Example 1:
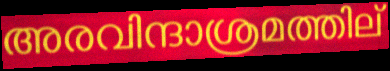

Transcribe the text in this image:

അരവിന്ദാശ്രമത്തില്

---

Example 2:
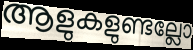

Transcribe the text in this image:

ആളുകളുണ്ടല്ലോ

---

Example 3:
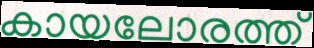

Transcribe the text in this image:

കായലോരത്ത്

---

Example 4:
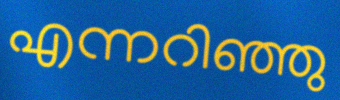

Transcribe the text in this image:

എന്നറിഞ്ഞു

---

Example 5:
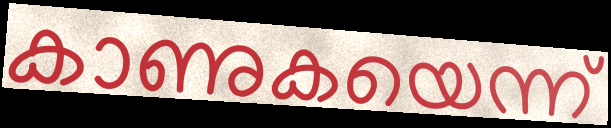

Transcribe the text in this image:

കാണുകയെന്ന്